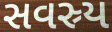
સવસ્ર્ય